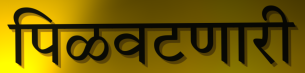
पिळवटणारी